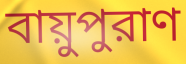
বায়ুপুরাণ